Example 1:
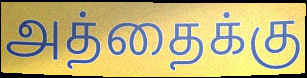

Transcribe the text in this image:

அத்தைக்கு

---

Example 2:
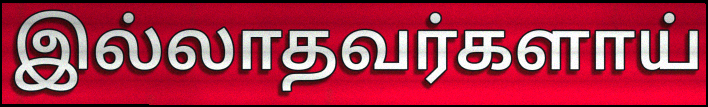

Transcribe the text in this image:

இல்லாதவர்களாய்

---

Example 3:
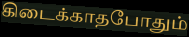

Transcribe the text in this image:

கிடைக்காதபோதும்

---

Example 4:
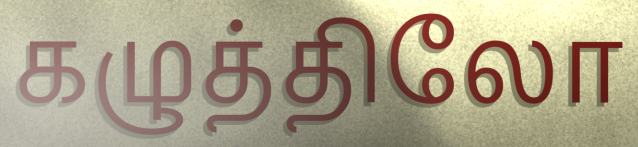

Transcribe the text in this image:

கழுத்திலோ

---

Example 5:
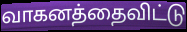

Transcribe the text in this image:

வாகனத்தைவிட்டு